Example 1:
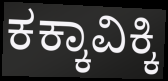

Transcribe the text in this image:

ಕಕ್ಕಾವಿಕ್ಕಿ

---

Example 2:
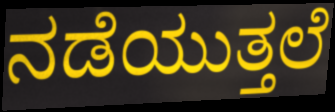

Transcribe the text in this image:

ನಡೆಯುತ್ತಲೆ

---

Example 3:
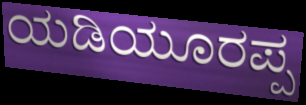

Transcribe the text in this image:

ಯಡಿಯೂರಪ್ಪ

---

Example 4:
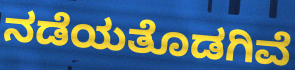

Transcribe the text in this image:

ನಡೆಯತೊಡಗಿವೆ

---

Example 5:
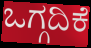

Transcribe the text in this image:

ಒಗ್ಗದಿಕೆ